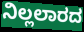
ನಿಲ್ಲಲಾರದ